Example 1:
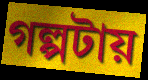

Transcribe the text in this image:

গল্পটায়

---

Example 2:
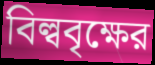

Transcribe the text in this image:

বিল্ববৃক্ষের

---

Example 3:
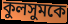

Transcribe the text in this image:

কুলসুমকে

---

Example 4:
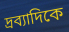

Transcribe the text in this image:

দ্রব্যাদিকে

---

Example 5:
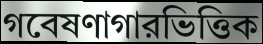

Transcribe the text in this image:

গবেষণাগারভিত্তিক